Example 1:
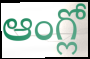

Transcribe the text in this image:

ఆంగ్లో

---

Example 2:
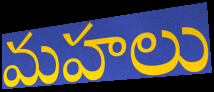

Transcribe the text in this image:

మహలు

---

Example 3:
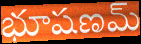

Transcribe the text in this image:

భూషణమ్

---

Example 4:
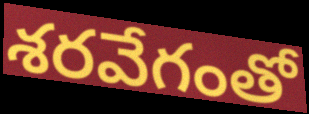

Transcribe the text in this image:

శరవేగంతో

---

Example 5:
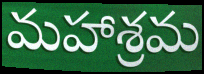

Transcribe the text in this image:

మహాశ్రమ